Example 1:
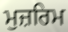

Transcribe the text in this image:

ਮੁਜ਼ਰਿਮ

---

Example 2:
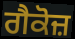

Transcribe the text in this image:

ਗੈਕੋਜ਼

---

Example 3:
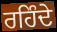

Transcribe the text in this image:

ਰਹਿੰਦੇ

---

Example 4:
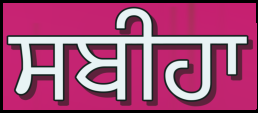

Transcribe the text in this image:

ਸਬੀਹਾ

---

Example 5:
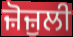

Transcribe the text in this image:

ਜ਼ੋਜ਼ੁਲੀ